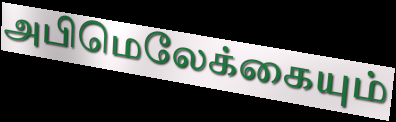
அபிமெலேக்கையும்